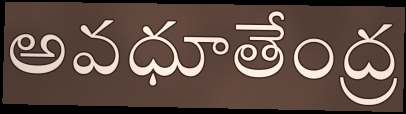
అవధూతేంద్ర